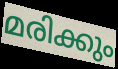
മരിക്കും